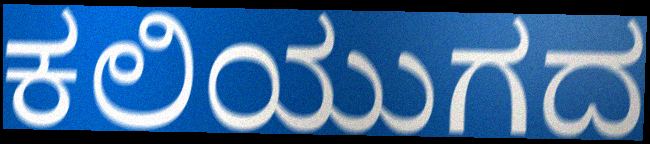
ಕಲಿಯುಗದ